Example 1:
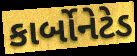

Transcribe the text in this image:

કાર્બોનેટેડ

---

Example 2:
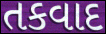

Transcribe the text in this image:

તકવાદ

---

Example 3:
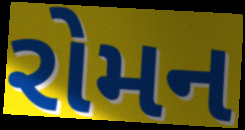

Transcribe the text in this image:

રોમન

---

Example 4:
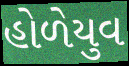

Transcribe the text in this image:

હોળેયુવ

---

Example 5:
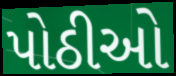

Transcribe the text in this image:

પોઠીઓ